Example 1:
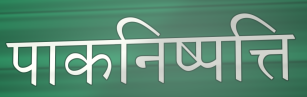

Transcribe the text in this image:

पाकनिष्पत्ति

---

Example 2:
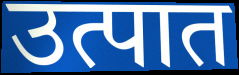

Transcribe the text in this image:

उत्पात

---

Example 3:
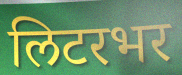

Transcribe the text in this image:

लिटरभर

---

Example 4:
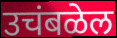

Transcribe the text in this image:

उचंबळेल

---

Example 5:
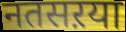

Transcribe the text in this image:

नतसऱया